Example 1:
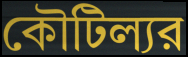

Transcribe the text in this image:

কৌটিল্যর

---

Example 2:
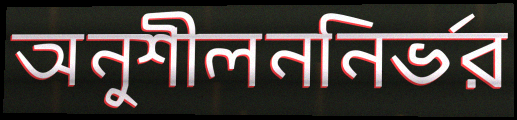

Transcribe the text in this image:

অনুশীলননির্ভর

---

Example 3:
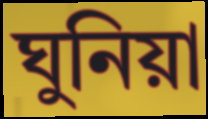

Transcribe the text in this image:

ঘুনিয়া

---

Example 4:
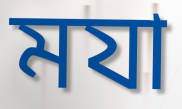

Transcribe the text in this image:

মযা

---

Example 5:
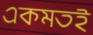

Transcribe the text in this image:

একমতই